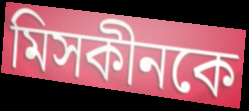
মিসকীনকে